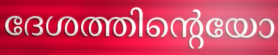
ദേശത്തിന്റെയോ